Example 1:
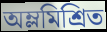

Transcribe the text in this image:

অম্লমিশ্রিত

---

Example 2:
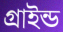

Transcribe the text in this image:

গ্রাইন্ড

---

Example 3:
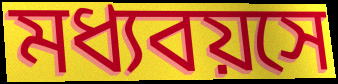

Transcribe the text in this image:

মধ্যবয়সে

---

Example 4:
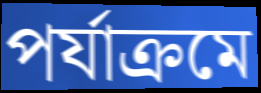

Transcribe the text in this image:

পর্যাক্রমে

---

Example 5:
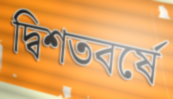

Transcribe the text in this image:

দ্বিশতবর্ষে